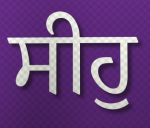
ਸੀਹੁ